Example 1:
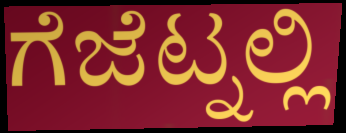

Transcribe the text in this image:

ಗೆಜೆಟ್ನಲ್ಲಿ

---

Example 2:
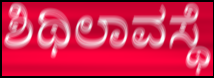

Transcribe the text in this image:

ಶಿಥಿಲಾವಸ್ಥೆ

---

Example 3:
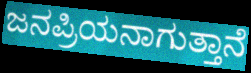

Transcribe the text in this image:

ಜನಪ್ರಿಯನಾಗುತ್ತಾನೆ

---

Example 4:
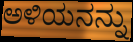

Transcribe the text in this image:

ಅಳಿಯನನ್ನು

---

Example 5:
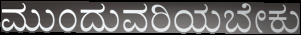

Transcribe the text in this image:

ಮುಂದುವರಿಯಬೇಕು